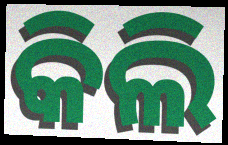
କିଲି